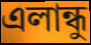
এলান্ধু